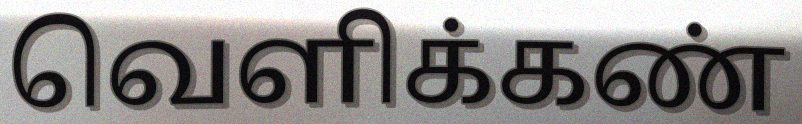
வெளிக்கண்